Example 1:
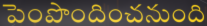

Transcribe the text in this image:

పెంపొందించనుంది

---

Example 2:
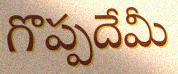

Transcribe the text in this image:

గొప్పదేమీ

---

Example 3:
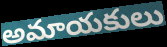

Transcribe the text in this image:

అమాయకులు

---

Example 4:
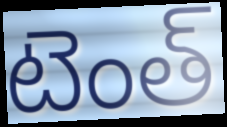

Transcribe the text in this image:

టెంత్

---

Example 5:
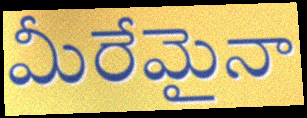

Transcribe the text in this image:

మీరేమైనా